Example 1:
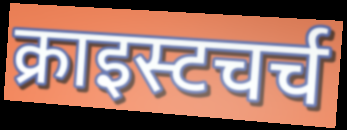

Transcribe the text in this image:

क्राइस्टचर्च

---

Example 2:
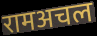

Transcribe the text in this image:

रामअचल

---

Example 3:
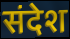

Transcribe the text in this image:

संदेश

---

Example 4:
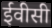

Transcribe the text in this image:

ईवीसी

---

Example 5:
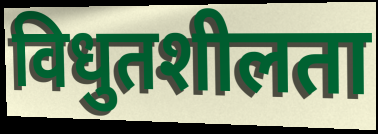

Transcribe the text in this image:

विधुतशीलता